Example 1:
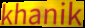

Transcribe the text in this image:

khanik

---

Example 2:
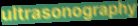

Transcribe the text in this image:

ultrasonography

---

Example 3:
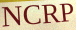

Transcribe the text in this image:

NCRP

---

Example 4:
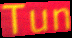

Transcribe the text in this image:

Tun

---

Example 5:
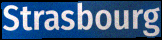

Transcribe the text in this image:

Strasbourg